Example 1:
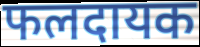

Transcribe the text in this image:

फलदायक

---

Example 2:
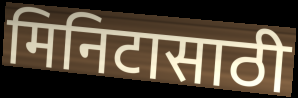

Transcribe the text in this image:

मिनिटासाठी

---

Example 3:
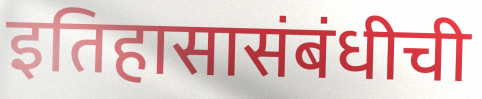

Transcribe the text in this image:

इतिहासासंबंधीची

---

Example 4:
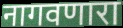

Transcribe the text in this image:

नागवणारा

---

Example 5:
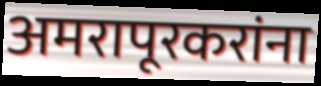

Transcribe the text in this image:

अमरापूरकरांना